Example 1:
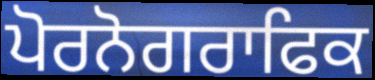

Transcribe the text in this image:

ਪੋਰਨੋਗਰਾਫਿਕ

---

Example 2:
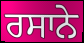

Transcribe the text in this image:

ਰਸਾਨੇ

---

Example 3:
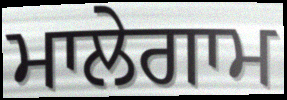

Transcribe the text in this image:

ਮਾਲੇਗਾਮ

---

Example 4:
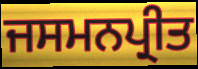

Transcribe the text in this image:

ਜਸਮਨਪ੍ਰੀਤ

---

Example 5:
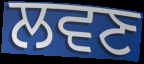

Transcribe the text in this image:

ਲਵਣ